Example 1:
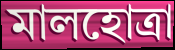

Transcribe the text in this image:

মালহোত্রা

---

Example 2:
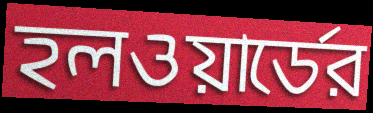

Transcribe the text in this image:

হলওয়ার্ডের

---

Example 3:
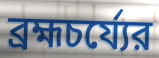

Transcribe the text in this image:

ব্রহ্মচর্য্যের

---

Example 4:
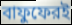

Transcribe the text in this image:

বাফুফেরই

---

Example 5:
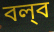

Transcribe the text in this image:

বল্‌ব